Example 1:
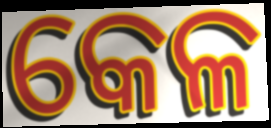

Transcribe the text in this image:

କେଳ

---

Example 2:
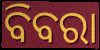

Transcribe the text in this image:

ବିବରା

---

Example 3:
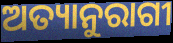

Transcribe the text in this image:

ଅତ୍ୟାନୁରାଗୀ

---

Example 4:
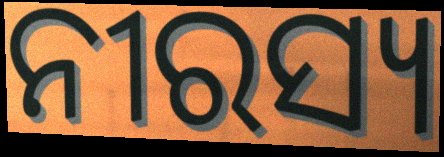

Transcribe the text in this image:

ନୀରସ୍ୟ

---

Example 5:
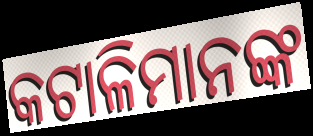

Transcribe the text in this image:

କଟାଳିମାନଙ୍କ